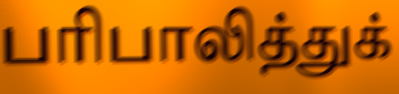
பரிபாலித்துக்